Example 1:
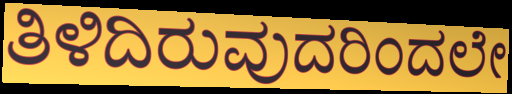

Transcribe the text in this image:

ತಿಳಿದಿರುವುದರಿಂದಲೇ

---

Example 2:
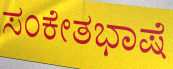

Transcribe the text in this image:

ಸಂಕೇತಭಾಷೆ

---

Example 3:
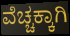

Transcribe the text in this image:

ವೆಚ್ಚಕ್ಕಾಗಿ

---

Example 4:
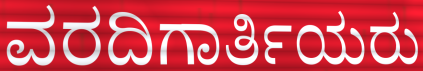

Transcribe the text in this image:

ವರದಿಗಾರ್ತಿಯರು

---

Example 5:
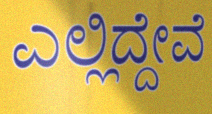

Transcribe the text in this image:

ಎಲ್ಲಿದ್ದೇವೆ